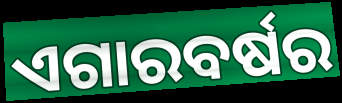
ଏଗାରବର୍ଷର